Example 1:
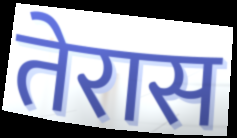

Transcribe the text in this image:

तेरास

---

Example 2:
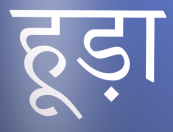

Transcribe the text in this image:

हूड़ा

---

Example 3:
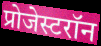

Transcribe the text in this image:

प्रोजेस्टरॉन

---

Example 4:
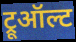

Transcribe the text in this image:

ट्रूऑल्ट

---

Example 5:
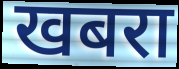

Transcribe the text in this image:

खबरा